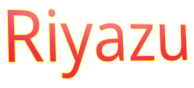
Riyazu